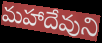
మహాదేవుని